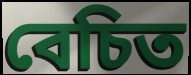
বেচিত